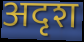
अदृश